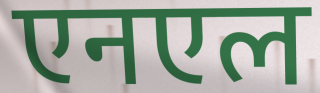
एनएल